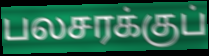
பலசரக்குப்